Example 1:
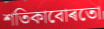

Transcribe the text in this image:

শতিকাবোৰতো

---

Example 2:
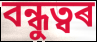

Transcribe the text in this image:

বন্ধুত্বৰ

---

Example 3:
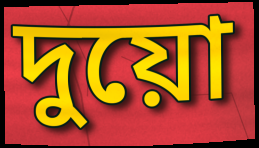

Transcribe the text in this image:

দুয়ো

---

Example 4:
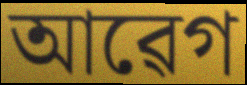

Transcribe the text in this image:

আৱেগ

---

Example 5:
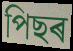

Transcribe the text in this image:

পিছৰ